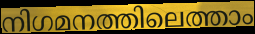
നിഗമനത്തിലെത്താം